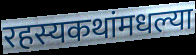
रहस्यकथांमधल्या